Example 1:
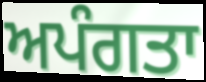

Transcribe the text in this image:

ਅਪੰਗਤਾ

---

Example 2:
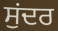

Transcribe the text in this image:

ਸੁਂਦਰ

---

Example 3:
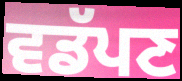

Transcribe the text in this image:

ਵਡੱਪਣ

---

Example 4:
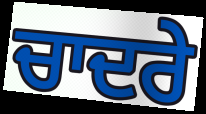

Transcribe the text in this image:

ਚਾਦਰੇ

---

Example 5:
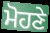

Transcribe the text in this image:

ਮੋਹਣੇ